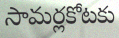
సామర్లకోటకు